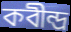
কবীন্দ্র